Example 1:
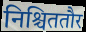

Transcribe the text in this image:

निश्चिततौर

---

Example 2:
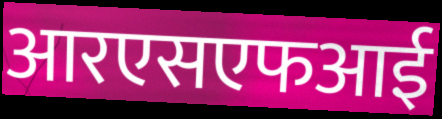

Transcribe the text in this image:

आरएसएफआई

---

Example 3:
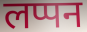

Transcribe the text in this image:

लप्पन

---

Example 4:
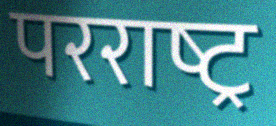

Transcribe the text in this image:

परराष्ट्र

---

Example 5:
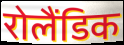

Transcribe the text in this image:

रोलैंडिक